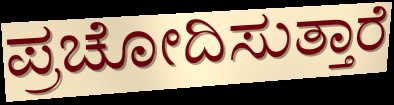
ಪ್ರಚೋದಿಸುತ್ತಾರೆ